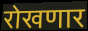
रोखणार